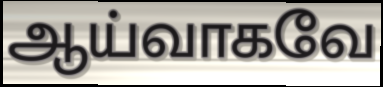
ஆய்வாகவே